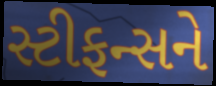
સ્ટીફન્સને